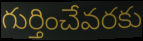
గుర్తించేవరకు